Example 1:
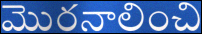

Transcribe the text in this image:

మొరనాలించి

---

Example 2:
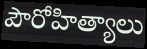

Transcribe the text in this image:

పౌరోహిత్యాలు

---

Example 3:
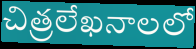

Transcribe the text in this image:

చిత్రలేఖనాలలో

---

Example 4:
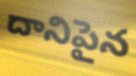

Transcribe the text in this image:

దానిపైన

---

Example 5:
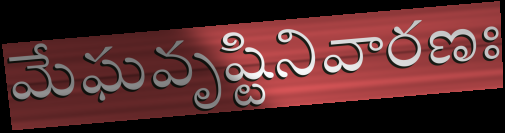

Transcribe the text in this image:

మేఘవృష్టినివారణః